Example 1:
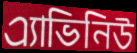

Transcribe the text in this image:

এ্যাভিনিউ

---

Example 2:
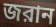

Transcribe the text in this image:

জরান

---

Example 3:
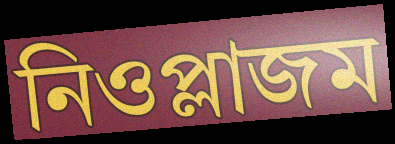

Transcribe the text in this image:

নিওপ্লাজম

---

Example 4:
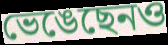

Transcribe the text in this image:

ভেঙেছেনও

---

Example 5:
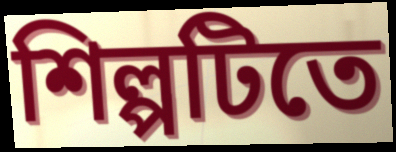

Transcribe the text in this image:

শিল্পটিতে